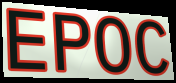
EPOC